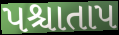
પશ્ચાતાપ